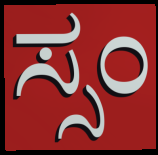
ಸ್ಸಂ